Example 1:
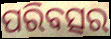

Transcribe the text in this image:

ପରିବତ୍ସର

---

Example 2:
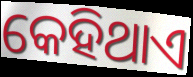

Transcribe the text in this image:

କେହିଥାଏ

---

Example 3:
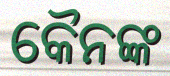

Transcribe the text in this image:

କୈନଙ୍କ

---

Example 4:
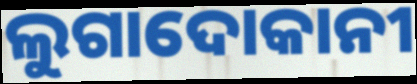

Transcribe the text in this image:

ଲୁଗାଦୋକାନୀ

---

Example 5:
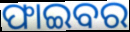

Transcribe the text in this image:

ଫାଇବର